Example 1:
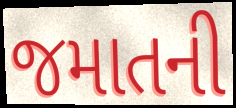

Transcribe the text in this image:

જમાતની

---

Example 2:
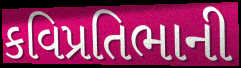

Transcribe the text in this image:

કવિપ્રતિભાની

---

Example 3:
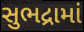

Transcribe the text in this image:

સુભદ્રામાં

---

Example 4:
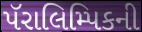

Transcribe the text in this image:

પૅરાલિમ્પિકની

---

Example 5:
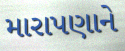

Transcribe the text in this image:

મારાપણાને